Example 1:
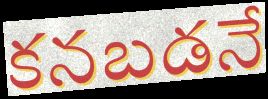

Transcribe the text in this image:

కనబడనే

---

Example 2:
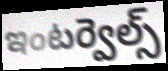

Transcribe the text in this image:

ఇంటర్వెల్స్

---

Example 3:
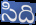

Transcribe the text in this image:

సిది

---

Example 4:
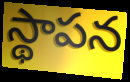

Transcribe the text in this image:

స్థాపన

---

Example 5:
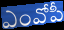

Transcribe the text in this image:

ఎంవోపీ